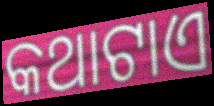
କଥାଟାଏ